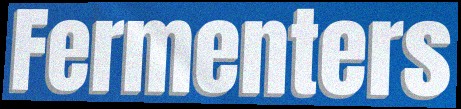
Fermenters